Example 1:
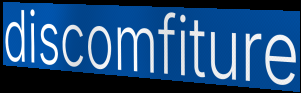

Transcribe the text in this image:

discomfiture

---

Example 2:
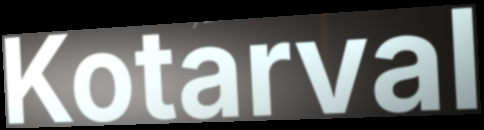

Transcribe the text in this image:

Kotarval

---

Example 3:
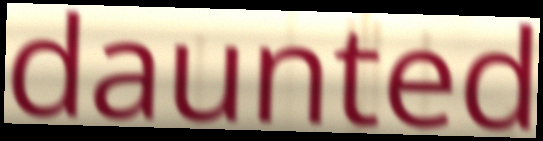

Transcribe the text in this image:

daunted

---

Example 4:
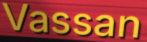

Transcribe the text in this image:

Vassan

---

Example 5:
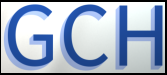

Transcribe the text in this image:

GCH